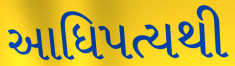
આધિપત્યથી